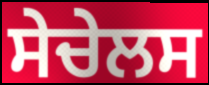
ਸੇਚੇਲਸ